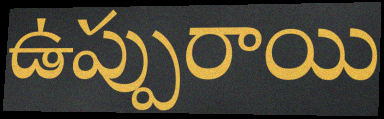
ఉప్పురాయి